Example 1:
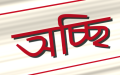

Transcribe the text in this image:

অচ্ছি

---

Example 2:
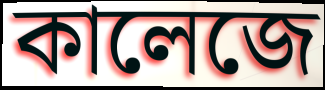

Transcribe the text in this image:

কালেজে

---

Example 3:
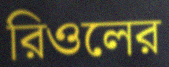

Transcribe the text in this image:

রিওলের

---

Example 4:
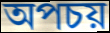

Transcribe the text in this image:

অপচয়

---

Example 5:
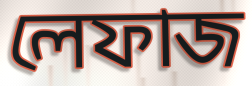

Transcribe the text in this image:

লেফাজ